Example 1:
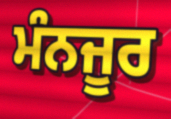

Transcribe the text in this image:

ਮੰਨਜੂਰ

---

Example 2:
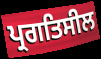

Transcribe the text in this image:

ਪ੍ਰਗਤਿਸੀਲ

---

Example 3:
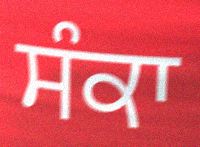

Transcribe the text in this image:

ਸੰਕਾ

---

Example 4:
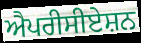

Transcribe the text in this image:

ਐਪਰੀਸੀਏਸ਼ਨ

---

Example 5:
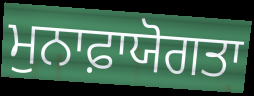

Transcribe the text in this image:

ਮੁਨਾਫ਼ਾਯੋਗਤਾ